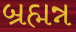
બ્રહ્મન્ન